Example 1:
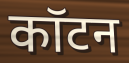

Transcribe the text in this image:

कॉटन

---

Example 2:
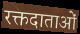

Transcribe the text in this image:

रक्तदाताओं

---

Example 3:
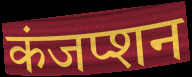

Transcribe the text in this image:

कंजप्शन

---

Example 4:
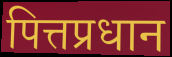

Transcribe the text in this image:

पित्तप्रधान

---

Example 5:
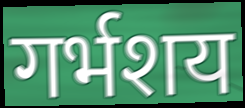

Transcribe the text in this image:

गर्भशय